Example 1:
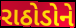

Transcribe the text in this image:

રાઠોડોને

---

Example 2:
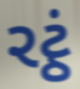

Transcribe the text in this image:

રટ્ઠં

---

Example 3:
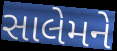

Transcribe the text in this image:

સાલેમને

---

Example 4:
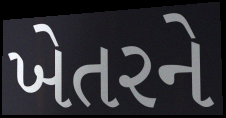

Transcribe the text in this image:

ખેતરને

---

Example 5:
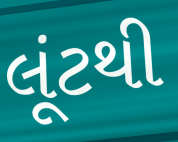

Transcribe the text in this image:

લૂંટથી